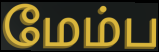
மேம்ப